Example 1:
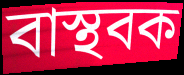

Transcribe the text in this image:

বাস্থবক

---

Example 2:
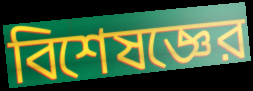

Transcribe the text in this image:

বিশেষজ্ঞের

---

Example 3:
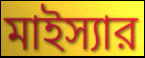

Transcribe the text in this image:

মাইস্যার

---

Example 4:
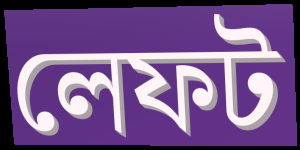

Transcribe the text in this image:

লেফট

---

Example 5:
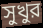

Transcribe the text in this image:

সুখুর